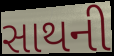
સાથની